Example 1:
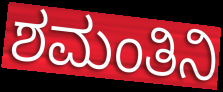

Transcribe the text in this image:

ಶಮಂತಿನಿ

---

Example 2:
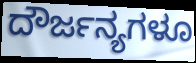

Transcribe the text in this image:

ದೌರ್ಜನ್ಯಗಳೂ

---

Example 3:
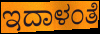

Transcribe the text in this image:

ಇದಾಳಂತೆ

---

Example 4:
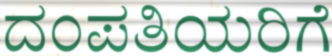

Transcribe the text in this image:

ದಂಪತಿಯರಿಗೆ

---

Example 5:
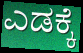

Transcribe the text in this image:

ಎಡಕ್ಕೆ